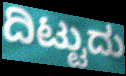
ದಿಟ್ಟುದು